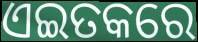
ଏଇତକରେ